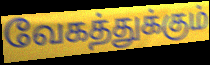
வேகத்துக்கும்